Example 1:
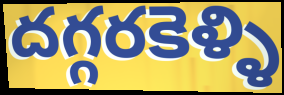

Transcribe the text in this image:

దగ్గరకెళ్ళి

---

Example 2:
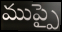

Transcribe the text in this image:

ముప్పై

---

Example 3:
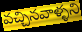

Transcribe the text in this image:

వచ్చినవాళ్ళని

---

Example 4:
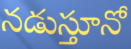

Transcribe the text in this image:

నడుస్తూనో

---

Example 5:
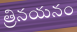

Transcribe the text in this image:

త్రినయనం